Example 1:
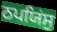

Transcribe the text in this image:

ਠਪਯਿਂਸੁ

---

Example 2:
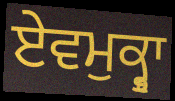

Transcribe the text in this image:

ਏਵਮੁਕ੍ਤ੍ਵਾ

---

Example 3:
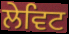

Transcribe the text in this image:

ਲੇਵਿਟ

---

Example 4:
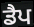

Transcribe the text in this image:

ਡੈਪ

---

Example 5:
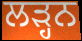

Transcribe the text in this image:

ਲੜ੍ਹਨ